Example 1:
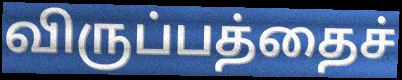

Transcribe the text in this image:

விருப்பத்தைச்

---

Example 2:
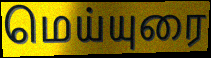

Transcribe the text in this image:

மெய்யுரை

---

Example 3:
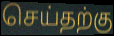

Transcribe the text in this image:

செய்தற்கு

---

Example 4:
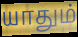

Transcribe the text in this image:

யாதும்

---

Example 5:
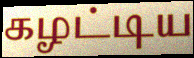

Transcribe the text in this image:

கழட்டிய